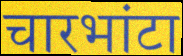
चारभांटा